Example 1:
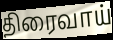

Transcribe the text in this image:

திரைவாய்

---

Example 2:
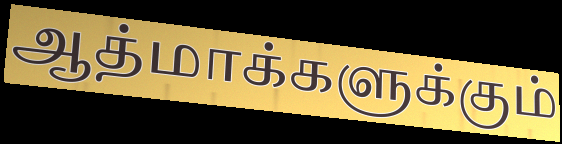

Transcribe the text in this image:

ஆத்மாக்களுக்கும்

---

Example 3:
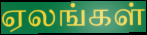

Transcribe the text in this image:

ஏலங்கள்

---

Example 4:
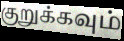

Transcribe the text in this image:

குறுக்கவும்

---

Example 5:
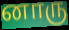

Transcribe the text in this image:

னாரு